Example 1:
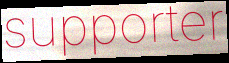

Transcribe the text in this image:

supporter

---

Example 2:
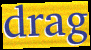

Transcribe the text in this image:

drag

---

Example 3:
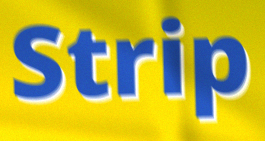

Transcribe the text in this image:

Strip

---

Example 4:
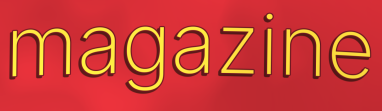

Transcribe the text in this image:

magazine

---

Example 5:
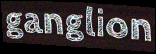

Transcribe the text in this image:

ganglion